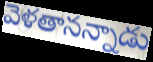
వెళతానన్నాడు